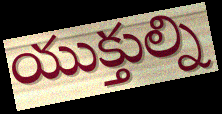
యుక్తుల్ని